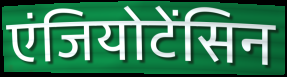
एंजियोटेंसिन